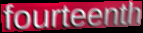
fourteenth